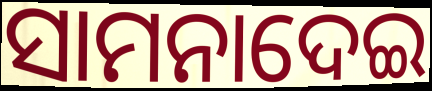
ସାମନାଦେଇ